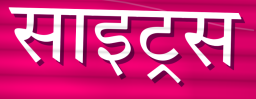
साइट्रस